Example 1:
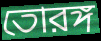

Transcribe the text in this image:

তোরঙ্গ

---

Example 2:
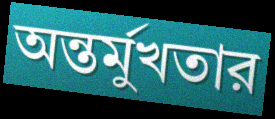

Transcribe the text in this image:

অন্তর্মুখতার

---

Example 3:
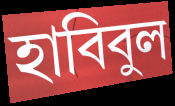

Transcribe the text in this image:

হাবিবুল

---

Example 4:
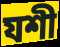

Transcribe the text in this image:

যশী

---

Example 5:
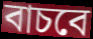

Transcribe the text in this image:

বাচবে